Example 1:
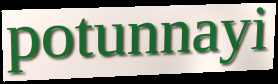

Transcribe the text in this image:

potunnayi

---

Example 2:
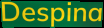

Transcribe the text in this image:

Despina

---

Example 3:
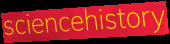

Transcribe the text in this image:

sciencehistory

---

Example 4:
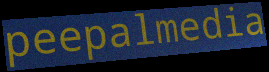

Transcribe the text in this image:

peepalmedia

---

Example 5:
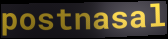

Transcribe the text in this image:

postnasal